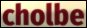
cholbe